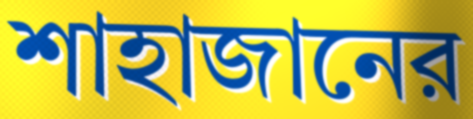
শাহাজানের